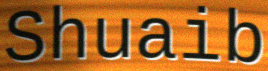
Shuaib